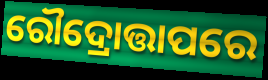
ରୌଦ୍ରୋତ୍ତାପରେ